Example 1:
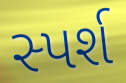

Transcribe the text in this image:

સ્પર્શ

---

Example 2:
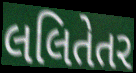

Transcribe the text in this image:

લલિતેતર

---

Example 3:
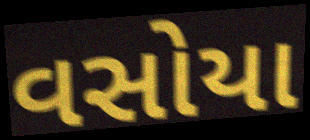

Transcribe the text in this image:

વસોયા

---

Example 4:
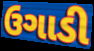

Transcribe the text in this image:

ઉગાડી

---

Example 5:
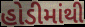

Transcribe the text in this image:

હોડીમાંથી